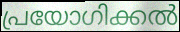
പ്രയോഗിക്കൽ